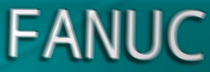
FANUC